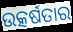
ଉତ୍କର୍ଷତାର